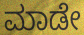
ಮಾಡೇ